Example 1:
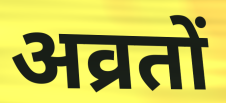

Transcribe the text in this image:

अव्रतों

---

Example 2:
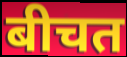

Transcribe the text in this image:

बीचत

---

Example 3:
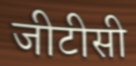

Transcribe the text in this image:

जीटीसी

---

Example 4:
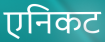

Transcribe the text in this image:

एनिकट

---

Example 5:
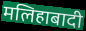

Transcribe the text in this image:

मलिहाबादी